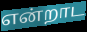
என்றாட